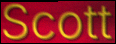
Scott